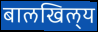
बालखिल्य